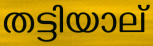
തട്ടിയാല്